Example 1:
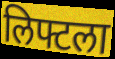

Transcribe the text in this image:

लिफ्टला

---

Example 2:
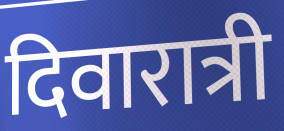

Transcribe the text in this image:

दिवारात्री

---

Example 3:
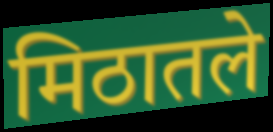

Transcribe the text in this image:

मिठातले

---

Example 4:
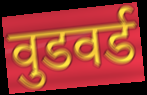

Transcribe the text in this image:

वुडवर्ड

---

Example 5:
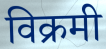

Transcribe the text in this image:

विक्रमी